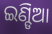
ଇଣ୍ଡିଆ